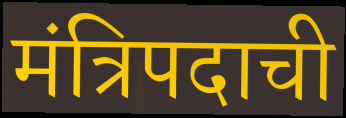
मंत्रिपदाची